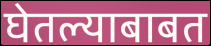
घेतल्याबाबत